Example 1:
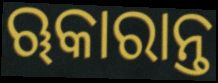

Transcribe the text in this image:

ୠକାରାନ୍ତ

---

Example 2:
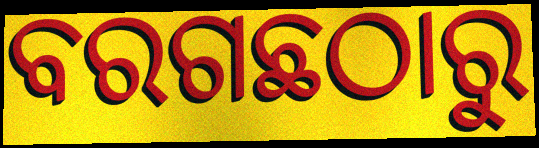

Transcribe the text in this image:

ବରଗଛଠାରୁ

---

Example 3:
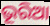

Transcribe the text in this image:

ଭୂରିଆ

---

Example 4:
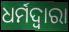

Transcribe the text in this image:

ଧର୍ମଦ୍ୱାରା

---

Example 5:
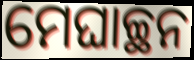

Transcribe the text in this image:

ମେଘାଚ୍ଛନ